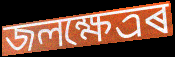
জলক্ষেত্ৰৰ